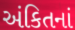
અંકિતનાં